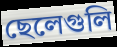
ছেলেগুলি